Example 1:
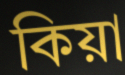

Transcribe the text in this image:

কিয়া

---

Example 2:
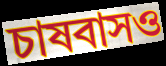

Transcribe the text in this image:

চাষবাসও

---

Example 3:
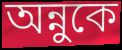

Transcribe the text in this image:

অন্নুকে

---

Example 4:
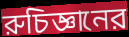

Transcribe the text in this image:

রুচিজ্ঞানের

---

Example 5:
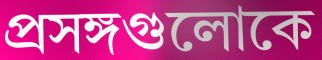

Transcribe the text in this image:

প্রসঙ্গগুলোকে